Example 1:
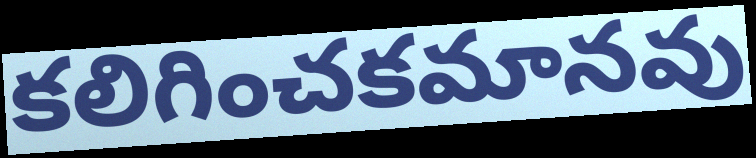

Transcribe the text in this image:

కలిగించకమానవు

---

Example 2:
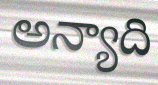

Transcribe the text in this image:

అన్యాది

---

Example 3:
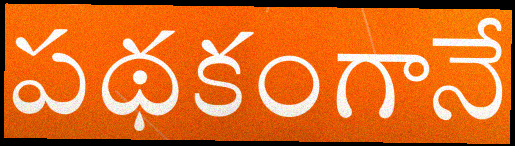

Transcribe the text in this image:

పథకంగానే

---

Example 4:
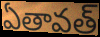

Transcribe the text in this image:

ఏతావత్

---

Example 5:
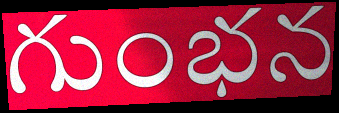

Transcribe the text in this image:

గుంభన